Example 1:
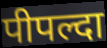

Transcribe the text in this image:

पीपल्दा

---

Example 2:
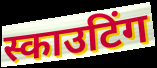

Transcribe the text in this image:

स्काउटिंग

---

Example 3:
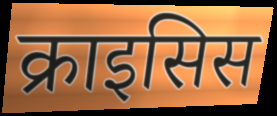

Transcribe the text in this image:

क्राइसिस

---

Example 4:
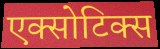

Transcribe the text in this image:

एक्सोटिक्स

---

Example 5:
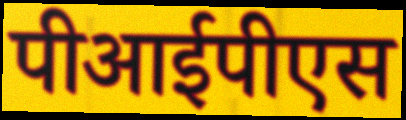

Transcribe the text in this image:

पीआईपीएस